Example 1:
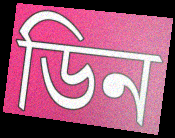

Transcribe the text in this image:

ডিন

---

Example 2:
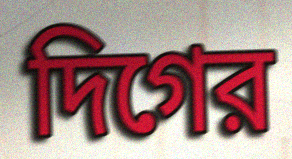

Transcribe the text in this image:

দিগের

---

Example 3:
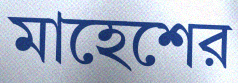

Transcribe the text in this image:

মাহেশের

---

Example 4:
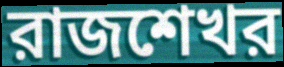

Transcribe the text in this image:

রাজশেখর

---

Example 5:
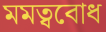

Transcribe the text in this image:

মমত্ববোধ